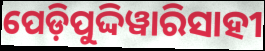
ପେଡ଼ିପୁଦ୍ଦିୱାରିସାହୀ